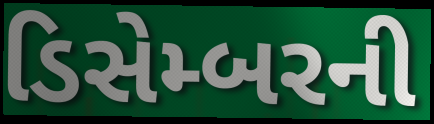
ડિસેમ્બરની